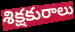
శిక్షకురాలు